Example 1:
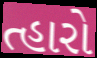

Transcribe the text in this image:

ત્હારો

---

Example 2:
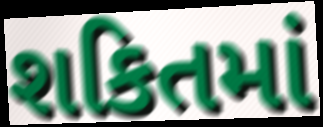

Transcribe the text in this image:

શકિતમાં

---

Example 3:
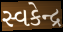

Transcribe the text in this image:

સ્વકેન્દ્ર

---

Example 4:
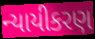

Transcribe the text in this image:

ન્યાયીકરણ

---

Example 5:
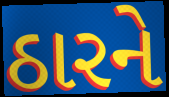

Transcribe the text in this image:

ઠારને